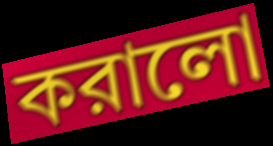
করালো